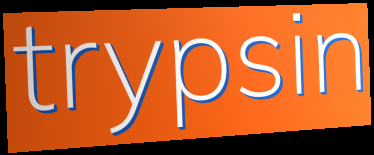
trypsin